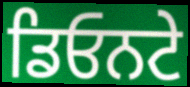
ਡਿਓਨਟੇ